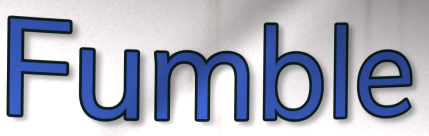
Fumble